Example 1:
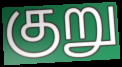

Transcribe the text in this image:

குறு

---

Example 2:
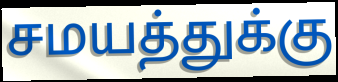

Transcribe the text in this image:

சமயத்துக்கு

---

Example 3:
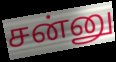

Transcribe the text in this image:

சன்னு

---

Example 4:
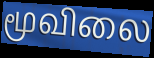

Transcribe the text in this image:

மூவிலை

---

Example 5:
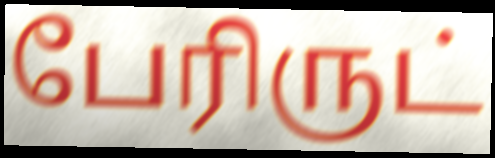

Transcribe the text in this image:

பேரிருட்